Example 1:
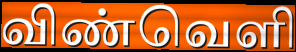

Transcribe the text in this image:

விண்வெளி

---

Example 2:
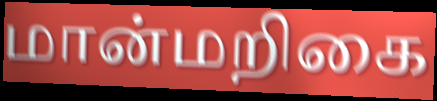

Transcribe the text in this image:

மான்மறிகை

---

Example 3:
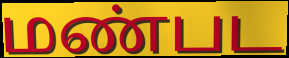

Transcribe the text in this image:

மண்பட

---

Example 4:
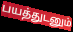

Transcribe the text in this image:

பயத்துடனும்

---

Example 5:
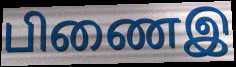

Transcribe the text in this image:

பிணைஇ